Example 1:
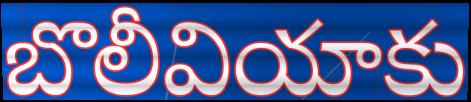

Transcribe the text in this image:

బొలీవియాకు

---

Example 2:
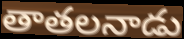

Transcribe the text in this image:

తాతలనాడు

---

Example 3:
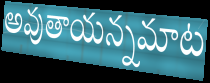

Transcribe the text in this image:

అవుతాయన్నమాట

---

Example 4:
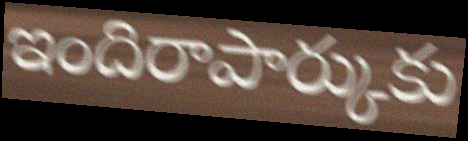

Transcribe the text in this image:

ఇందిరాపార్కుకు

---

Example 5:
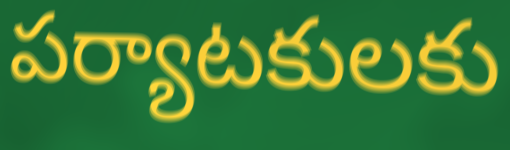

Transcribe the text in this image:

పర్యాటకులకు